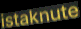
istaknute